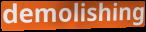
demolishing